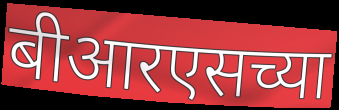
बीआरएसच्या